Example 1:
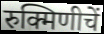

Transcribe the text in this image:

रुक्मिणीचें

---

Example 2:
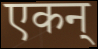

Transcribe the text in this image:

एकन्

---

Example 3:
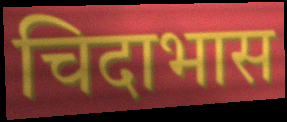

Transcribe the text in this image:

चिदाभास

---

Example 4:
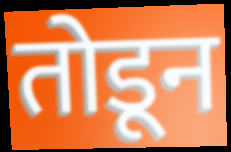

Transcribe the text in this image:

तोडून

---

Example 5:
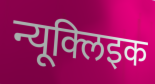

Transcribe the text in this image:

न्यूक्‍लिइक